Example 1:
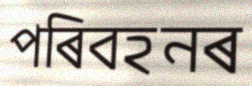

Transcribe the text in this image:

পৰিবহনৰ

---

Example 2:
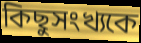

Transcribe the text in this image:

কিছুসংখ্যকে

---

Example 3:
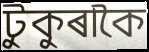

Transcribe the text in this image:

টুকুৰাকৈ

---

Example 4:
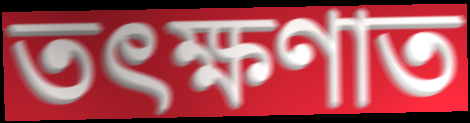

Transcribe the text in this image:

তৎক্ষণাত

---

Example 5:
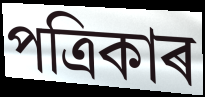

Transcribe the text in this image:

পত্ৰিকাৰ